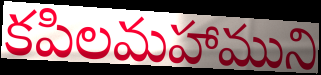
కపిలమహాముని